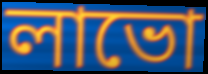
লাভো